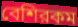
বেশিরকম